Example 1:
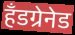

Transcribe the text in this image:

हॅंडग्रेनेड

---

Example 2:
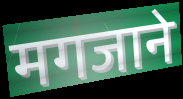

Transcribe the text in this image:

मगजाने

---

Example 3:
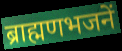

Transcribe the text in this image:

ब्राह्मणभजनें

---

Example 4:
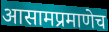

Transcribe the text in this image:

आसामप्रमाणेच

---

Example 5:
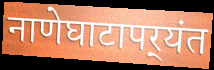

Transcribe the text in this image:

नाणेघाटापर्यंत